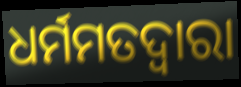
ଧର୍ମମତଦ୍ୱାରା